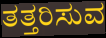
ತತ್ತರಿಸುವ